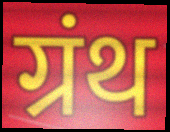
ग्रंथ